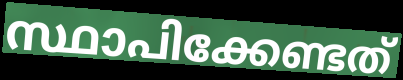
സ്ഥാപിക്കേണ്ടത്